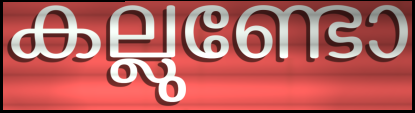
കല്ലുണ്ടോ